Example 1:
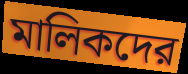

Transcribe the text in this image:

মালিকদের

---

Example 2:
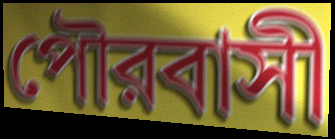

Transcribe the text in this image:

পৌরবাসী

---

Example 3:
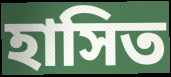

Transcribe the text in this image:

হাসিত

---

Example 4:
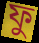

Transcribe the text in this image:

ফু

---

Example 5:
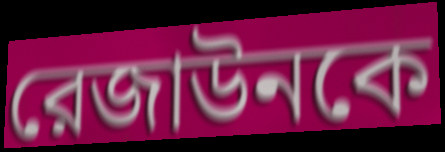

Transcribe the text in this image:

রেজাউনকে